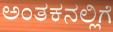
ಅಂತಕನಲ್ಲಿಗೆ